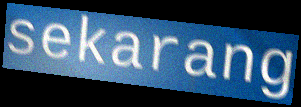
sekarang